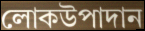
লোকউপাদান